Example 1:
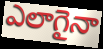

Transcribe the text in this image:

ఎలాగైనా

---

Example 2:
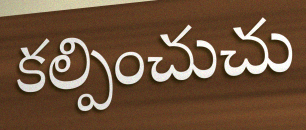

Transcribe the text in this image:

కల్పించుచు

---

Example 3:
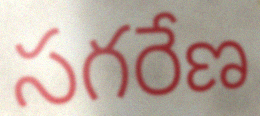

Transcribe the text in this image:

సగరేణ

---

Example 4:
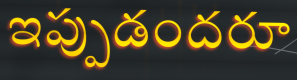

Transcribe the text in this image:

ఇప్పుడందరూ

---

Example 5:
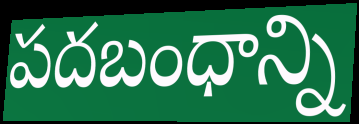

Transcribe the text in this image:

పదబంధాన్ని